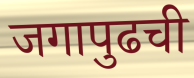
जगापुढची